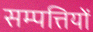
सम्‍पत्तियों